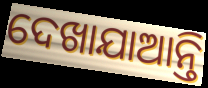
ଦେଖାଯାଆନ୍ତି